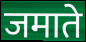
जमाते